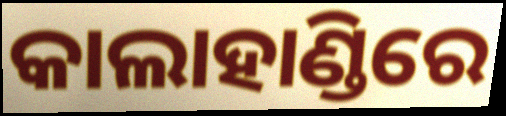
କାଲାହାଣ୍ଡିରେ